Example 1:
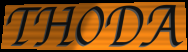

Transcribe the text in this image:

THODA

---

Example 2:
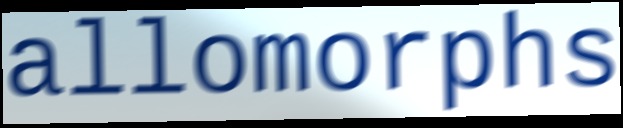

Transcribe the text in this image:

allomorphs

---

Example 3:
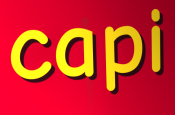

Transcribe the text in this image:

capi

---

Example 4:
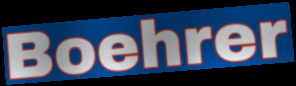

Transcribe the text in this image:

Boehrer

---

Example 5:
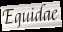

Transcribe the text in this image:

Equidae